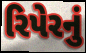
રિપેરનું